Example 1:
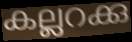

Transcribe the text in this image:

കല്ലറക്കു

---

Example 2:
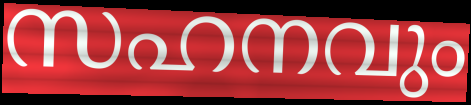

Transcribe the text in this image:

സഹനവും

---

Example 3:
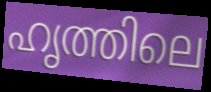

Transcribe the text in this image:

ഹൃത്തിലെ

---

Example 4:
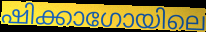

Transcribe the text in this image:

ഷിക്കാഗോയിലെ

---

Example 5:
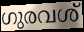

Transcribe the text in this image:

ഗുരവശ്